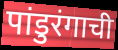
पांडुरंगाची